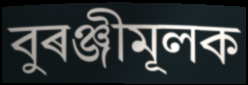
বুৰঞ্জীমূলক